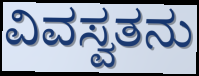
ವಿವಸ್ವತನು